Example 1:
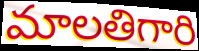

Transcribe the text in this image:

మాలతిగారి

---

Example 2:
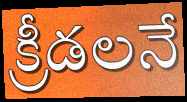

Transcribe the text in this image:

క్రీడలనే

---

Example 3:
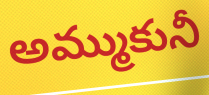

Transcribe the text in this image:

అమ్ముకునీ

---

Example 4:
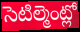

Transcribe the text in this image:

సెటిల్మెంట్లో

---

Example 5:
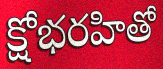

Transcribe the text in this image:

క్షోభరహితో